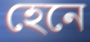
হেনে